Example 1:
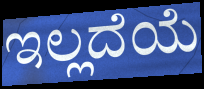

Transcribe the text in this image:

ಇಲ್ಲದೆಯೆ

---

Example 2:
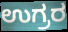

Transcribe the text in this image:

ಉಗ್ರರ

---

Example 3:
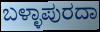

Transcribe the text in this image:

ಬಳ್ಳಾಪುರದಾ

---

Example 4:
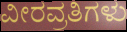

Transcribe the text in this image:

ವೀರವ್ರತಿಗಳು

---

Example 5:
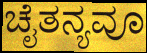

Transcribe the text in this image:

ಚೈತನ್ಯವೂ